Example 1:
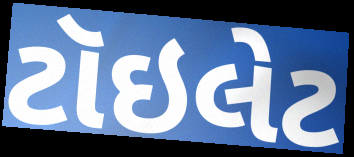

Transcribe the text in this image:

ટૉઇલેટ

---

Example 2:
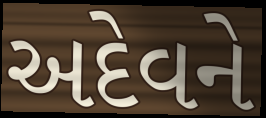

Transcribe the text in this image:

અદેવને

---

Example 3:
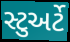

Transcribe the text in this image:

સ્ટુઅર્ટે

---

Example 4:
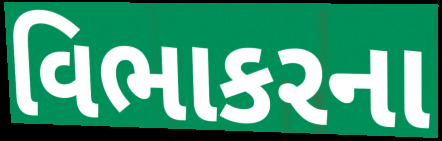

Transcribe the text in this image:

વિભાકરના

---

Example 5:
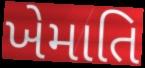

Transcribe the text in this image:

ખેમાતિ